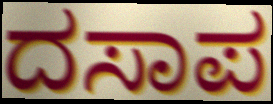
ದಸಾಪ